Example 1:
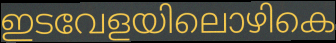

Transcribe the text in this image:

ഇടവേളയിലൊഴികെ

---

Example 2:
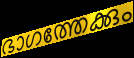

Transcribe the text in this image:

ഭാഗത്തേക്കും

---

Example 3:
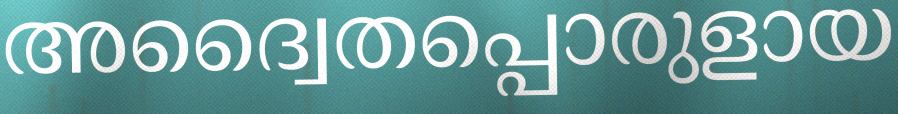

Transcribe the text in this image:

അദ്വൈതപ്പൊരുളായ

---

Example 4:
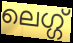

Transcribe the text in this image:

ലെഗ്ഗ്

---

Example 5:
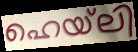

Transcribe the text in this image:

ഹെയ്‌ലി